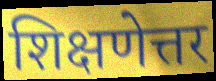
शिक्षणेत्तर